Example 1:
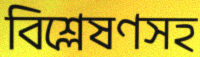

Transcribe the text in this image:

বিশ্লেষণসহ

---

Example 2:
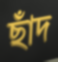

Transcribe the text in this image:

ছাঁদ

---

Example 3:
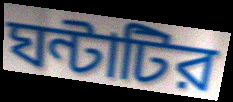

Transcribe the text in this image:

ঘন্টাটির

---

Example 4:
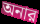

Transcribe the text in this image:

অনার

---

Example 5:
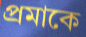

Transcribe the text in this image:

প্রমাকে